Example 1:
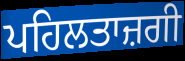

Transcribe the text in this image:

ਪਹਿਲਤਾਜ਼ਗੀ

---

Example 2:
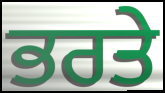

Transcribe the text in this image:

ਭਰਤੇ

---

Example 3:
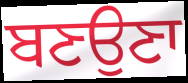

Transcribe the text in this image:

ਬਣਉਣਾ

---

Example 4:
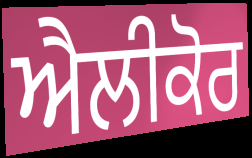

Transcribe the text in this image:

ਐਲੀਕੋਰ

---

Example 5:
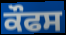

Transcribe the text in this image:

ਕੌਫਸ